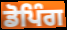
ਡੋਪਿੰਗ